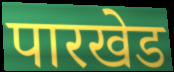
पारखेड